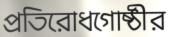
প্রতিরোধগোষ্ঠীর